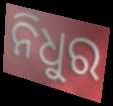
ନିଧୁର